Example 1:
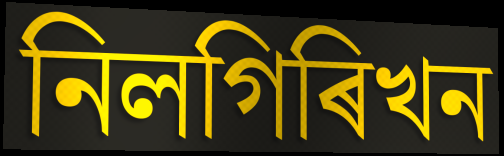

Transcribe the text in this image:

নিলগিৰিখন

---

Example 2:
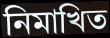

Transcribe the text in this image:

নিমাখিত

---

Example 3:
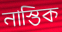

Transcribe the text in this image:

নাস্তিক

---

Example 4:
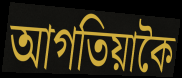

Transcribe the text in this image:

আগতিয়াকৈ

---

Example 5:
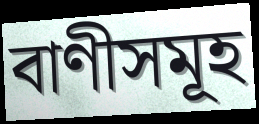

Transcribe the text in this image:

বাণীসমূহ